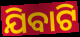
ଯିବାଟି